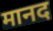
मानद